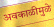
अवकाळीमुळे